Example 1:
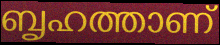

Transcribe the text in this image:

ബൃഹത്താണ്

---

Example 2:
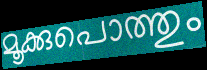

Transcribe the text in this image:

മൂക്കുപൊത്തും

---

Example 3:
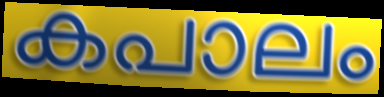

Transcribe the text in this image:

കപാലം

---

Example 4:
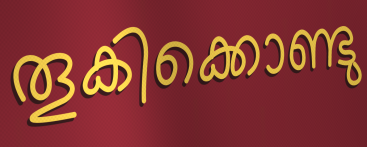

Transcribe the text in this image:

തൂകിക്കൊണ്ടു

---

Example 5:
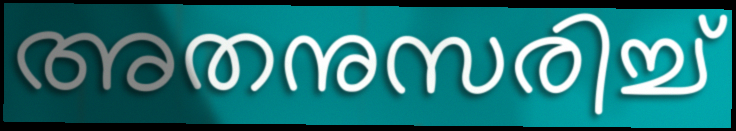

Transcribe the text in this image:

അതനുസരിച്ച്